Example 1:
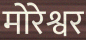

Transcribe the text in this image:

मोरेश्वर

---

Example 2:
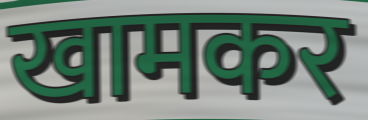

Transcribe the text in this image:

खामकर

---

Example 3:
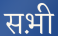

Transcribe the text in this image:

सभ़ी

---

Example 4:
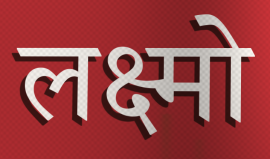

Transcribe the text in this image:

लक्ष्मो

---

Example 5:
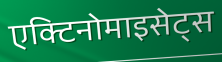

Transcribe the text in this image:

एक्टिनोमाइसेट्स